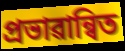
প্ৰভাৱান্বিত